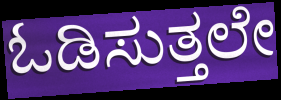
ಓಡಿಸುತ್ತಲೇ